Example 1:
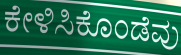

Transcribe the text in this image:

ಕೇಳಿಸಿಕೊಂಡೆವು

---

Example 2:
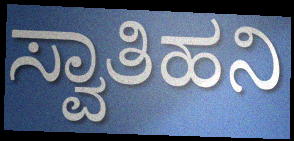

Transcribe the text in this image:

ಸ್ವಾತಿಹನಿ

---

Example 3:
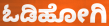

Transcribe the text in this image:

ಓಡಿಹೋಗಿ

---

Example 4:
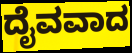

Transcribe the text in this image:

ದೈವವಾದ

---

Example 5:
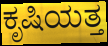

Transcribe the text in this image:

ಕೃಷಿಯತ್ತ